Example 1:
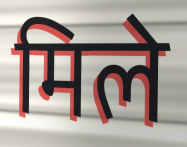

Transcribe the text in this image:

मिले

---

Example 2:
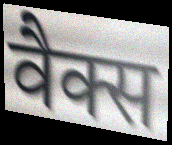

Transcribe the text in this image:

वैक्स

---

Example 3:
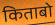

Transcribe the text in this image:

किताबो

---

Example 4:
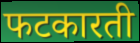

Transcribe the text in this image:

फटकारती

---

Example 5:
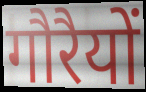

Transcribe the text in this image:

गौरैयों